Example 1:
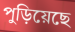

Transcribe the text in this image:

পুড়িয়েছে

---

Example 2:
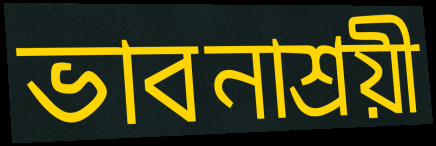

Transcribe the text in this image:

ভাবনাশ্রয়ী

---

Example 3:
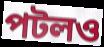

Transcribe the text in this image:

পটলও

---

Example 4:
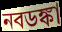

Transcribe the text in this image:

নবডঙ্কা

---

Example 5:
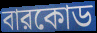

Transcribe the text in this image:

বারকোড